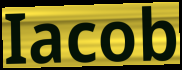
Iacob